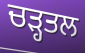
ਚੜ੍ਹਤਲ